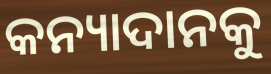
କନ୍ୟାଦାନକୁ